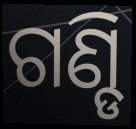
ଗଣ୍ଡି